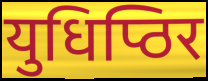
युधिप्ठिर